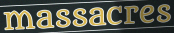
massacres